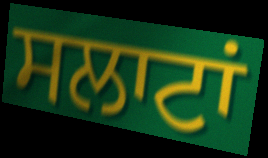
ਸਲਾਟਾਂ